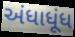
અંધાધૂંધ